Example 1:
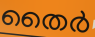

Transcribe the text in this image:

തൈർ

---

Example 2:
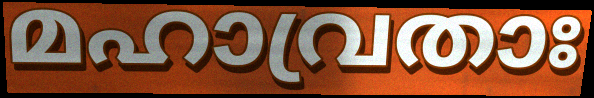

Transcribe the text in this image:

മഹാവ്രതാഃ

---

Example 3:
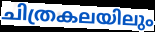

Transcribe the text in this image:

ചിത്രകലയിലും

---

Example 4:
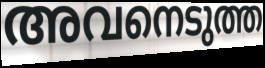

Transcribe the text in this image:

അവനെടുത്ത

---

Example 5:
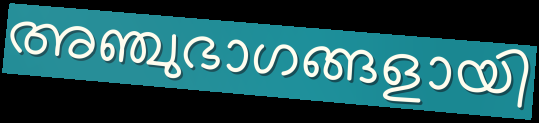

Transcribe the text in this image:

അഞ്ചുഭാഗങ്ങളായി